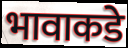
भावाकडे